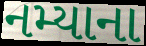
નમ્યાના